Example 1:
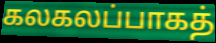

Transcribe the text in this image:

கலகலப்பாகத்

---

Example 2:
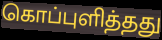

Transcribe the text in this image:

கொப்புளித்தது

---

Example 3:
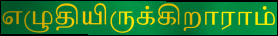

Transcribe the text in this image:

எழுதியிருக்கிறாராம்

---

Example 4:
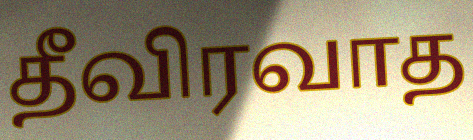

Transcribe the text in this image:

தீவிரவாத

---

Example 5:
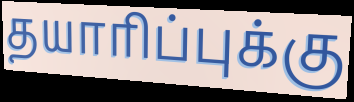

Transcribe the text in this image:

தயாரிப்புக்கு